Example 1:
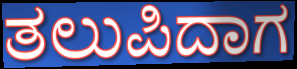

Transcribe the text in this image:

ತಲುಪಿದಾಗ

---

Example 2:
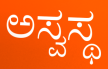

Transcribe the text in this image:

ಅಸ್ವಸ್ಥ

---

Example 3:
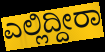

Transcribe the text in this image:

ಎಲ್ಲಿದ್ದೀರಾ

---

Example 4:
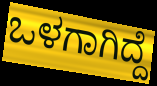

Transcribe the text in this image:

ಒಳಗಾಗಿದ್ದೆ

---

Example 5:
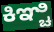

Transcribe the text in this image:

ಕಿಞ್ಚಿ